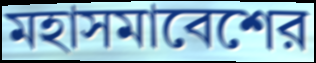
মহাসমাবেশের